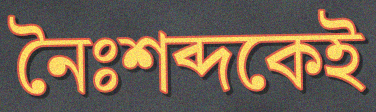
নৈঃশব্দকেই